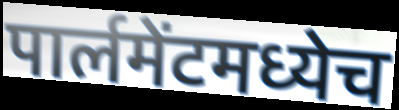
पार्लमेंटमध्येच